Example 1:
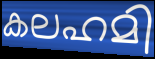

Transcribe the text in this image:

കലഹമി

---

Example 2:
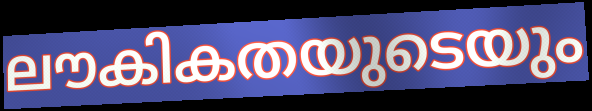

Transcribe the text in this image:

ലൗകികതയുടെയും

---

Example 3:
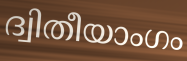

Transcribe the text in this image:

ദ്വിതീയാംഗം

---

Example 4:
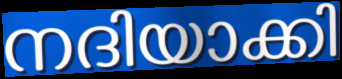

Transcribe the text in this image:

നദിയാക്കി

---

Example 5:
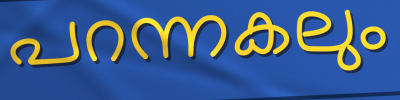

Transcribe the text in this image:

പറന്നകലും